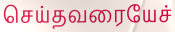
செய்தவரையேச்